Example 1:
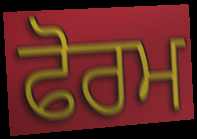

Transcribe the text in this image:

ਫੋਰਮ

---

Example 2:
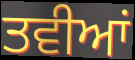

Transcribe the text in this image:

ਤਵੀਆਂ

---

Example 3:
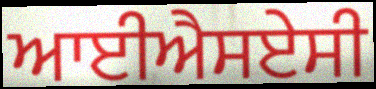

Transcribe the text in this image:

ਆਈਐਸਏਸੀ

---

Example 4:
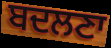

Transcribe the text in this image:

ਬਦਲਣਾ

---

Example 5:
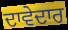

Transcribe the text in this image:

ਦਾਵੇਦਾਰ